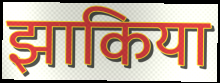
झाकिया